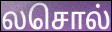
லசொல்